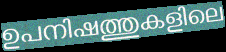
ഉപനിഷത്തുകളിലെ